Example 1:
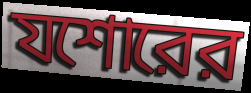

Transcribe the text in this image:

যশোরের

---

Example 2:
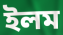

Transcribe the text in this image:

ইলম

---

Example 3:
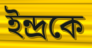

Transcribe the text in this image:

ইন্দ্রকে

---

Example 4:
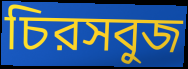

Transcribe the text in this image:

চিরসবুজ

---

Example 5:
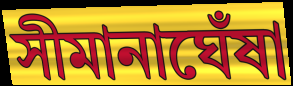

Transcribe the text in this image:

সীমানাঘেঁষা